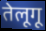
तेलूगू